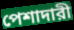
পেশাদারী